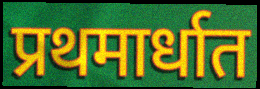
प्रथमार्धात